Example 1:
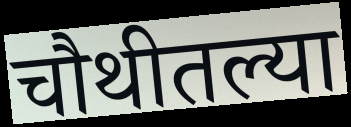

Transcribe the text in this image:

चौथीतल्या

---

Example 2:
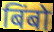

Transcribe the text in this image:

बिंबो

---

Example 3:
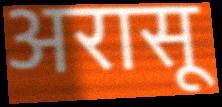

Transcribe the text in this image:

अरासू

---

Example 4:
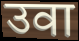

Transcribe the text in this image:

उवा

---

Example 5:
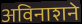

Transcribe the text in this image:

अविनाशने